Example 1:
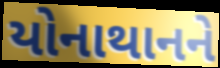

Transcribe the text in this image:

યોનાથાનને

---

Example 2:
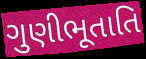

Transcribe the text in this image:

ગુણીભૂતાતિ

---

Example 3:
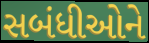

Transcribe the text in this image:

સબંધીઓને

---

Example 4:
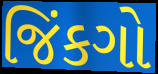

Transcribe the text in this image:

જિંકગો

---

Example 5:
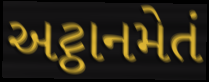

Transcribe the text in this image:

અટ્ઠાનમેતં